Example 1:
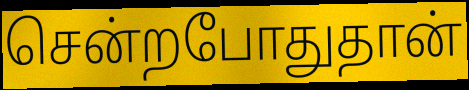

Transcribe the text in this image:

சென்றபோதுதான்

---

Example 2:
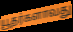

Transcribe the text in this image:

யூதர்களாவது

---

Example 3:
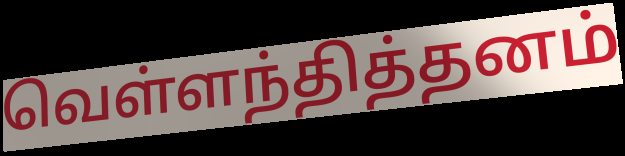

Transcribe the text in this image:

வெள்ளந்தித்தனம்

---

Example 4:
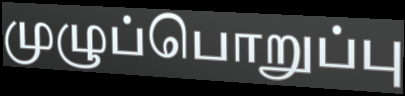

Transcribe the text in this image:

முழுப்பொறுப்பு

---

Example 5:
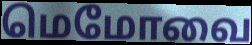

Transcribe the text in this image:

மெமோவை